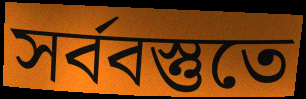
সর্ববস্তুতে